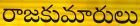
రాజకుమారులు